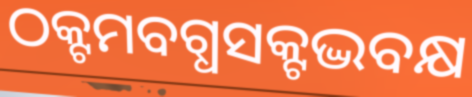
ଠକ୍ଟମବଗ୍ଧସକ୍ଟଦ୍ଭବକ୍ଷ